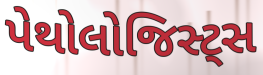
પેથોલોજિસ્ટ્સ